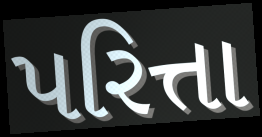
પરિત્તા